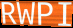
RWPI